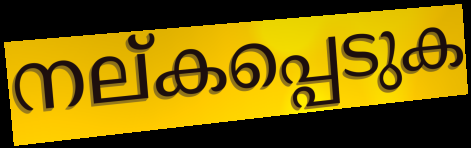
നല്കപ്പെടുക